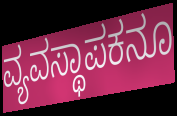
ವ್ಯವಸ್ಥಾಪಕನೂ